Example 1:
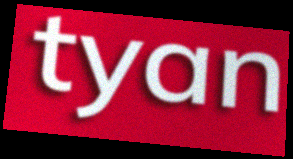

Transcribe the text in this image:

tyan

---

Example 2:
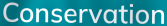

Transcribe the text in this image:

Conservation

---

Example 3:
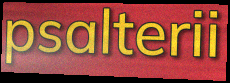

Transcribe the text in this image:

psalterii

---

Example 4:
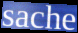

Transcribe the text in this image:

sache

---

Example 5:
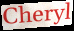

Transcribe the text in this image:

Cheryl